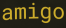
amigo